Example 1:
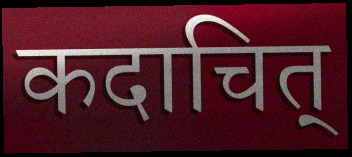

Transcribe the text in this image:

कदाचित्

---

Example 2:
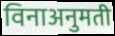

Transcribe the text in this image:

विनाअनुमती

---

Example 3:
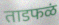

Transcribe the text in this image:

ताडफळं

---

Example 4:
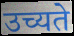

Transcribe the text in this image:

उच्यते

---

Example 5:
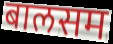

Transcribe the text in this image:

बालसम